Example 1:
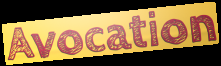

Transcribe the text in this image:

Avocation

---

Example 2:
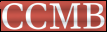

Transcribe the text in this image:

CCMB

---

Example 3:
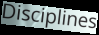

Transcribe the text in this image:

Disciplines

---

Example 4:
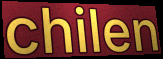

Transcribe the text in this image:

chilen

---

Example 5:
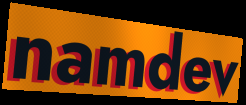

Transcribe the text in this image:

namdev